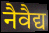
नैवैद्य